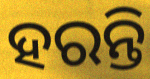
ହରନ୍ତି